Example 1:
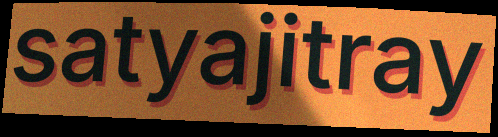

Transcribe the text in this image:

satyajitray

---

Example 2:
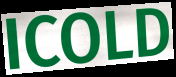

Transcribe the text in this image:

ICOLD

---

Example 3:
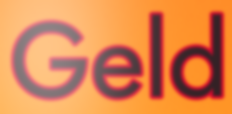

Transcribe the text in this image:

Geld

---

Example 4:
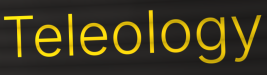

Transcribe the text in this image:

Teleology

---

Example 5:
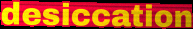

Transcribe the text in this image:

desiccation